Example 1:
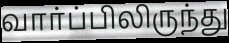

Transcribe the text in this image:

வார்ப்பிலிருந்து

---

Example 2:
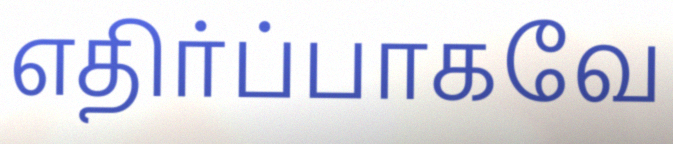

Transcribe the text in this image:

எதிர்ப்பாகவே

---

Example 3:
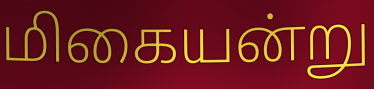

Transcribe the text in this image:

மிகையன்று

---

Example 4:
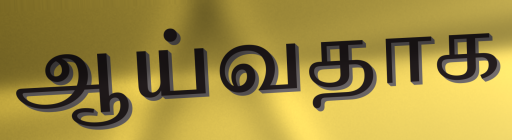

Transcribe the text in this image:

ஆய்வதாக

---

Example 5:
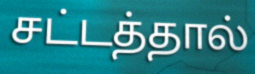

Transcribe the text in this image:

சட்டத்தால்